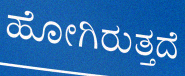
ಹೋಗಿರುತ್ತದೆ